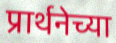
प्रार्थनेच्या